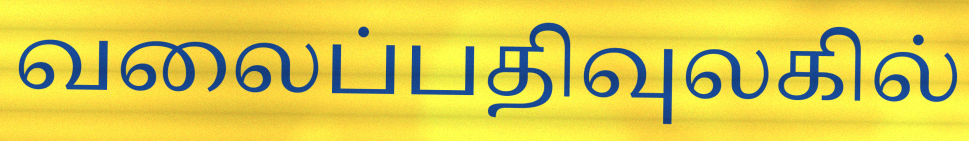
வலைப்பதிவுலகில்